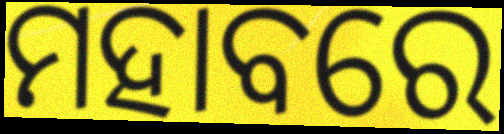
ମହାବରେ